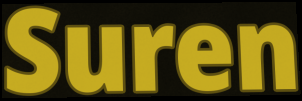
Suren